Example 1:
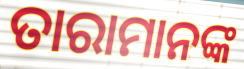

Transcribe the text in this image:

ତାରାମାନଙ୍କ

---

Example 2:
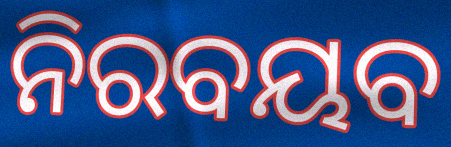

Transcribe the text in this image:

ନିରବୟବ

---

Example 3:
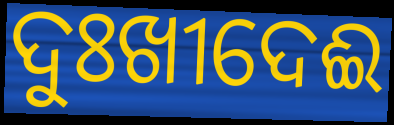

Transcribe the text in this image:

ଦୁଃଖୀଦେଈ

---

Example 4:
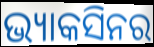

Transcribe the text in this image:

ଭ୍ୟାକସିନର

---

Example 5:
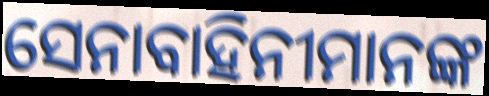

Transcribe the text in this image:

ସେନାବାହିନୀମାନଙ୍କ